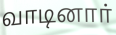
வாடினார்